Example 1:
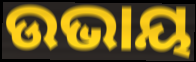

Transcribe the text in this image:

ଉଭାୟ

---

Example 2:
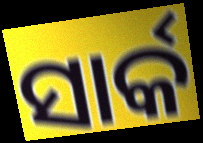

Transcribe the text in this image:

ସାର୍କ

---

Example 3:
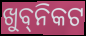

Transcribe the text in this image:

ଖୁବ୍‌ନିକଟ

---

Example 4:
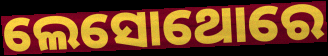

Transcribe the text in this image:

ଲେସୋଥୋରେ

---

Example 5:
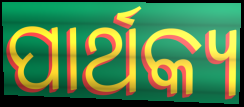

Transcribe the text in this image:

ପାର୍ଥକ୍ୟ